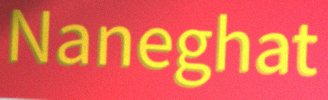
Naneghat